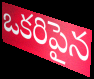
ఒకరిపైన